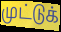
முட்டுக்